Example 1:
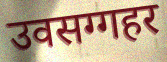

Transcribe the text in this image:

उवसग्गहर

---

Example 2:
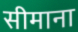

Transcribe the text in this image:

सीमाना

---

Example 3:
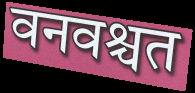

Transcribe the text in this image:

वनवश्चत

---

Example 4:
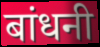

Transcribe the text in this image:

बांधनी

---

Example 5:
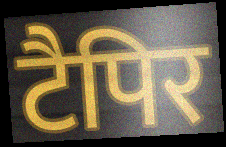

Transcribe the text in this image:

टैपिर